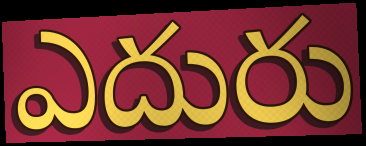
ఎదురు